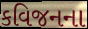
કવિજનના